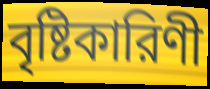
বৃষ্টিকারিণী